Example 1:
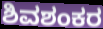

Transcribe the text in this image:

ಶಿವಶಂಕರ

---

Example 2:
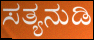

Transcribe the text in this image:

ಸತ್ಯನುಡಿ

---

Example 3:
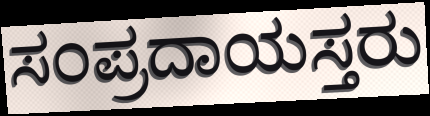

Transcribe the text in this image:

ಸಂಪ್ರದಾಯಸ್ತರು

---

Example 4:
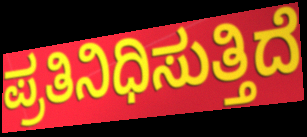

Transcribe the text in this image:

ಪ್ರತಿನಿಧಿಸುತ್ತಿದೆ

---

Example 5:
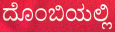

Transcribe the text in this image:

ದೊಂಬಿಯಲ್ಲಿ